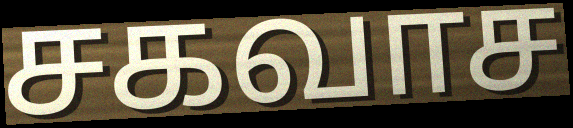
சகவாச